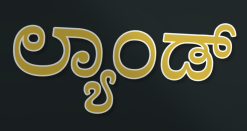
ಲ್ಯಾಂಡ್